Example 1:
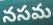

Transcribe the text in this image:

నసమ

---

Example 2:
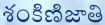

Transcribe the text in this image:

శంకిణిజాతి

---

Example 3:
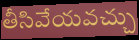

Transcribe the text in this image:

తీసివేయవచ్చు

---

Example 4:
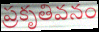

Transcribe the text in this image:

ప్రకృతివనం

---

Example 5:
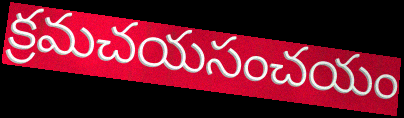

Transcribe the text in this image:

క్రమచయసంచయం